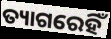
ତ୍ୟାଗରେହିଁ